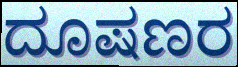
ದೂಷಣರ